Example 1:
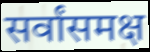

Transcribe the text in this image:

सर्वांसमक्ष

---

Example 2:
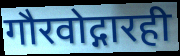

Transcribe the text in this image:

गौरवोद्गारही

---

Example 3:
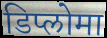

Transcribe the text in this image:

डिप्लोमा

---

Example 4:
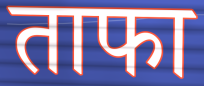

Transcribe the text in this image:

ताफा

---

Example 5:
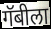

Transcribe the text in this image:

गॅबीला